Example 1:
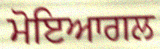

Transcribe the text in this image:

ਮੋਇਆਗਲ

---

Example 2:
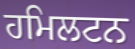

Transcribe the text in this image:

ਹਮਿਲਟਨ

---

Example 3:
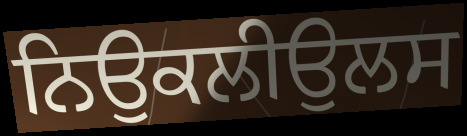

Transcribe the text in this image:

ਨਿਉਕਲੀਉਲਸ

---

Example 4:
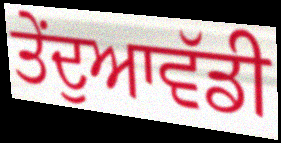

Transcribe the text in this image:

ਤੇਂਦੁਆਵੱਡੀ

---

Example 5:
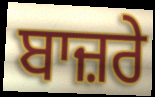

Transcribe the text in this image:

ਬਾਜ਼ਰੇ